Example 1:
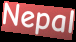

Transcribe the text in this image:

Nepal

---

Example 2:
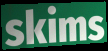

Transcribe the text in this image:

skims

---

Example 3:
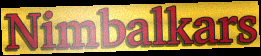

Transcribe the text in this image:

Nimbalkars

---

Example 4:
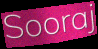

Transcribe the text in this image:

Sooraj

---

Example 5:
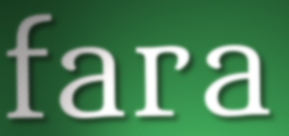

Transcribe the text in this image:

fara